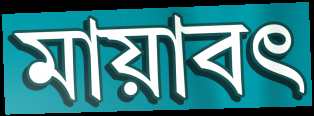
মায়াবৎ